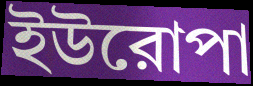
ইউরোপা